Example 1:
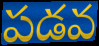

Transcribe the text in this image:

పడవ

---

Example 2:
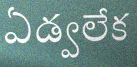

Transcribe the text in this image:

ఏడ్వలేక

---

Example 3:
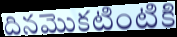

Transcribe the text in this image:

దినమొకటింటికి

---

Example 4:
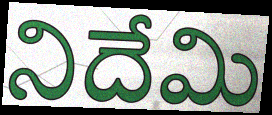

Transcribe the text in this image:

నిదేమి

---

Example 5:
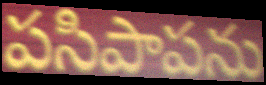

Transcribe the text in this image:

పసిపాపను